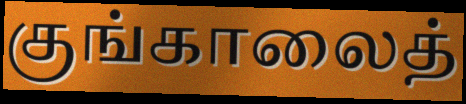
குங்காலைத்